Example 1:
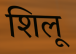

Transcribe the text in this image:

शिलू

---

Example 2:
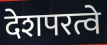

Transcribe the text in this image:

देशपरत्वे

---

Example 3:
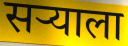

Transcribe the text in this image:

सऱ्याला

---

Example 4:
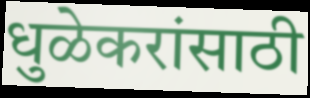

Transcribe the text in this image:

धुळेकरांसाठी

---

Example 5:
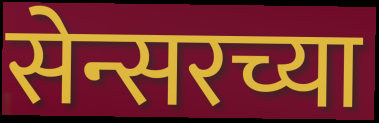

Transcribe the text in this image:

सेन्सरच्या